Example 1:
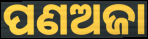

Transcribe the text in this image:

ପଣଅଜା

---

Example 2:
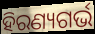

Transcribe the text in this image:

ହିରଣ୍ୟଗର୍ଭ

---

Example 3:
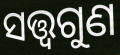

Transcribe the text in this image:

ସତ୍ତ୍ୱଗୁଣ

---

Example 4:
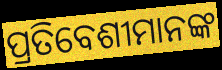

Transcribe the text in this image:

ପ୍ରତିବେଶୀମାନଙ୍କ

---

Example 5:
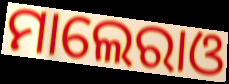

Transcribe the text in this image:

ମାଲେରାଓ